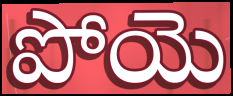
పోయె